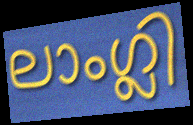
ലാംഗ്ലി